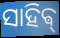
ସାହିଵ୍